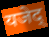
यजेद्